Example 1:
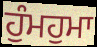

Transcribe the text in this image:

ਹੁੰਮਹੁਮਾ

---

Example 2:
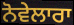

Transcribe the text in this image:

ਨੋਵੇਲਾਰਾ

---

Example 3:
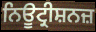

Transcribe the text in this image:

ਨਿਊਟ੍ਰੀਸ਼ਨਜ਼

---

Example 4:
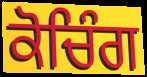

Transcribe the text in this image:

ਕੋਚਿੰਗ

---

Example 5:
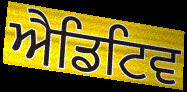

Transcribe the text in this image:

ਐਡਿਟਿਵ